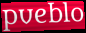
pueblo